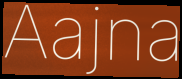
Aajna